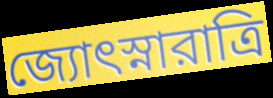
জ্যোৎস্নারাত্রি